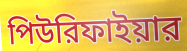
পিউরিফাইয়ার